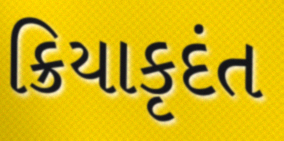
ક્રિયાકૃદંત